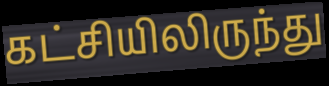
கட்சியிலிருந்து